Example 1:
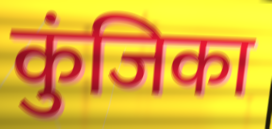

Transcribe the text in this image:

कुंजिका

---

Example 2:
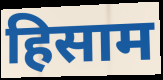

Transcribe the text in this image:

हिसाम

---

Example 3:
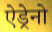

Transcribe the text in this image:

ऐड्रेनो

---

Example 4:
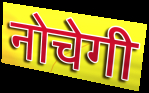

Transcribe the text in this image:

नोचेगी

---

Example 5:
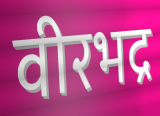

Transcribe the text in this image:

वीरभद्र